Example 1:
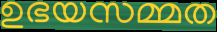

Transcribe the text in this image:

ഉഭയസമ്മത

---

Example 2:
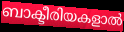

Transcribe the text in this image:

ബാക്ടീരിയകളാൽ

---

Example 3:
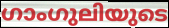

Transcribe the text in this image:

ഗാംഗുലിയുടെ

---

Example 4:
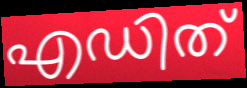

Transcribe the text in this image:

എഡിത്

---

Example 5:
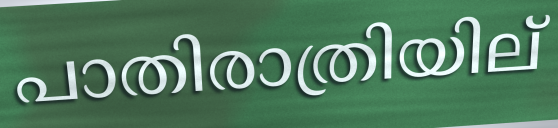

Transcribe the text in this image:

പാതിരാത്രിയില്